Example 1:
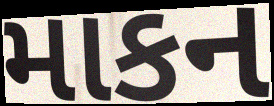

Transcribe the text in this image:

માકન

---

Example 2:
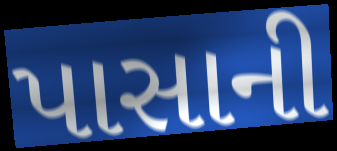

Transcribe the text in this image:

પાસાની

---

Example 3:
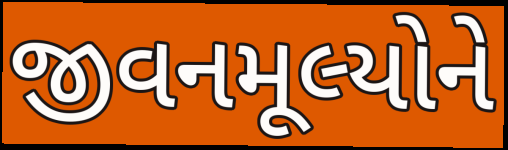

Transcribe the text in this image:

જીવનમૂલ્યોને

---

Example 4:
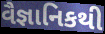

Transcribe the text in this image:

વૈજ્ઞાનિકથી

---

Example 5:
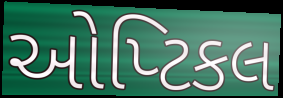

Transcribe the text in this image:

ઓપ્ટિકલ